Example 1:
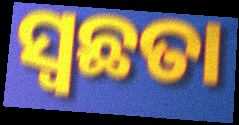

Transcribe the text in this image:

ସ୍ବଛତା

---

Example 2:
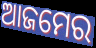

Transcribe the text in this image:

ଆଜମେର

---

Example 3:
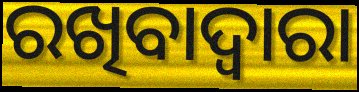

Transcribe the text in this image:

ରଖିବାଦ୍ୱାରା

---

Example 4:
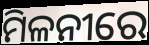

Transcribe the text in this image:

ମିଳନୀରେ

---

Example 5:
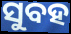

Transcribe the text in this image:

ସୁବହ